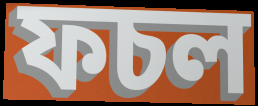
ফচল